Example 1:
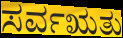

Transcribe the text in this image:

ಸರ್ವಋತು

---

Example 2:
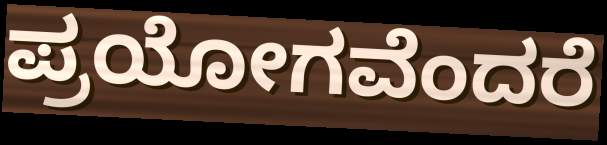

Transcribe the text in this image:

ಪ್ರಯೋಗವೆಂದರೆ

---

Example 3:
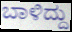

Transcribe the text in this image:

ಬಾಳಿದ್ದು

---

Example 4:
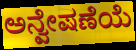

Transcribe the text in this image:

ಅನ್ವೇಷಣೆಯೆ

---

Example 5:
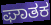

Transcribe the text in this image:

ಘಾತಕ